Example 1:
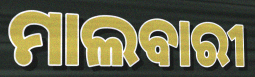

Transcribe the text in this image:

ମାଲବାରୀ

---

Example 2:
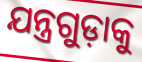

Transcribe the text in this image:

ଯନ୍ତ୍ରଗୁଡ଼ାକୁ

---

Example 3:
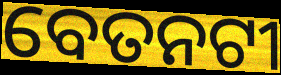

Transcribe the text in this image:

ବେତନଟୀ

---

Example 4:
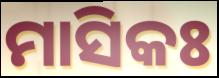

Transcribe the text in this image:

ମାସିକଃ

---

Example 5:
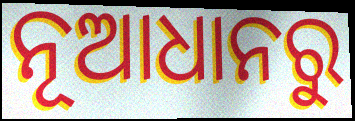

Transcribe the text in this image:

ନୂଆଧାନରୁ